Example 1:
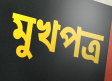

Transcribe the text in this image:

মুখপত্ৰ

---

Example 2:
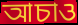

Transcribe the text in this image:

আচাও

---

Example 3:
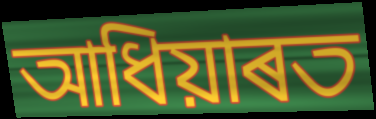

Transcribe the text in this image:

আধিয়াৰত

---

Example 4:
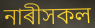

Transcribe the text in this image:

নাৰীসকল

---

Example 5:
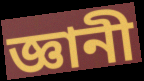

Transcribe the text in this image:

জ্ঞানী